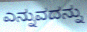
ಎನ್ನುವದನ್ನು